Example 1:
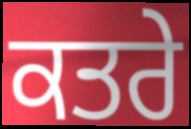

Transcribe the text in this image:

ਕਤਰੇ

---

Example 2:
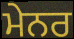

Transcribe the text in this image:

ਮੇਨਰ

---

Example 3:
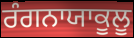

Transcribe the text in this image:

ਰੰਗਨਾਯਾਕੂਲੂ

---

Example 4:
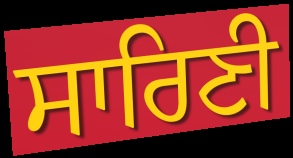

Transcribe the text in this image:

ਸਾਰਿਣੀ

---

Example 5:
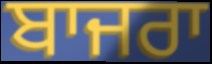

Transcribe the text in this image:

ਬਾਜਰਾ